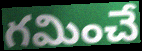
గమించే